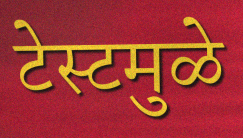
टेस्टमुळे